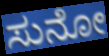
ಸುನೋ